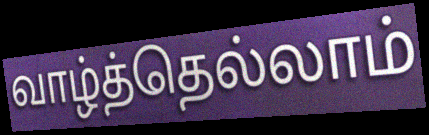
வாழ்த்தெல்லாம்